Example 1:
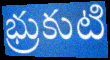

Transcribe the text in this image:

భ్రుకుటి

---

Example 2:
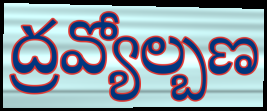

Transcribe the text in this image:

ద్రవ్యోల్బణ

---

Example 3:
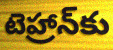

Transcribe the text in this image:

టెహ్రాన్‌కు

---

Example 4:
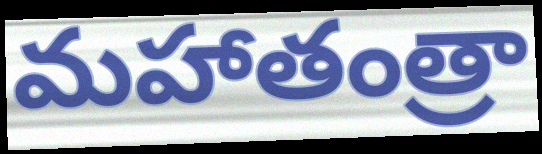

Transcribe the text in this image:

మహాతంత్రా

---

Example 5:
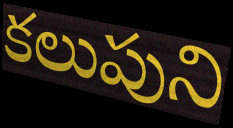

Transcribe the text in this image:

కలుపుని